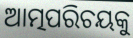
ଆତ୍ମପରିଚୟକୁ